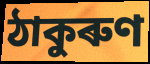
ঠাকুৰুণ